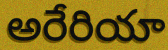
అరేరియా